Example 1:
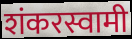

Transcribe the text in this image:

शंकरस्वामी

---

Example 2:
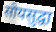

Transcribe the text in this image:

सोयसुद्धा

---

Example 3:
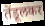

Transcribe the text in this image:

तेंडूलकर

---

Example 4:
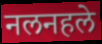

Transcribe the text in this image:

नलनहले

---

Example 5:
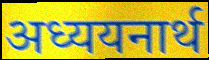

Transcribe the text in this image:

अध्ययनार्थ